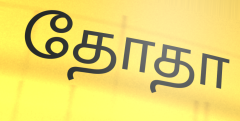
தோதா